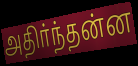
அதிர்ந்தன்ன